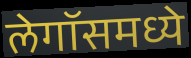
लेगॉसमध्ये